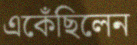
একেঁছিলেন